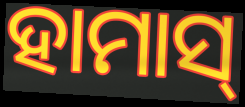
ହାମାସ୍